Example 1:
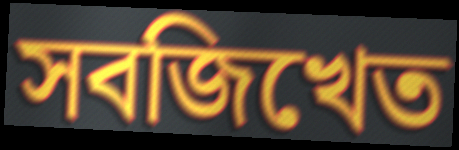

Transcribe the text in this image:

সবজিখেত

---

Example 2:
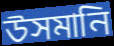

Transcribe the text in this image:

উসমানি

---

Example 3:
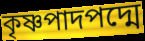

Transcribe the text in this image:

কৃষ্ণপাদপদ্মে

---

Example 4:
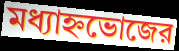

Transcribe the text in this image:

মধ্যাহ্নভোজের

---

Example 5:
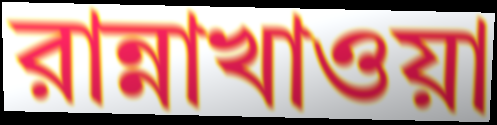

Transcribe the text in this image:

রান্নাখাওয়া